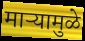
माऱ्यामुळे